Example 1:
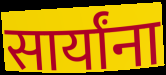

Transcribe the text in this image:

सार्यांना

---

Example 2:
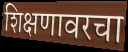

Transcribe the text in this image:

शिक्षणावरचा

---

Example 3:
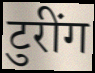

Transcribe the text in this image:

टुरींग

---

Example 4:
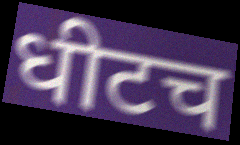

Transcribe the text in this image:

धीटच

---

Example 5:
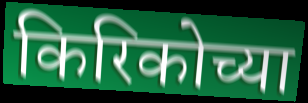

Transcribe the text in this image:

किरिकोच्या